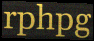
rphpg